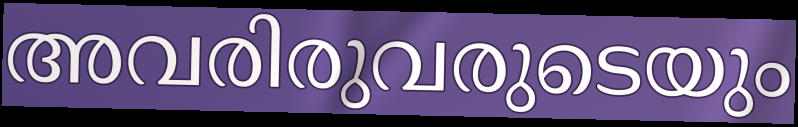
അവരിരുവരുടെയും